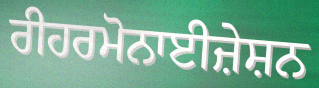
ਰੀਹਰਮੋਨਾਈਜ਼ੇਸ਼ਨ